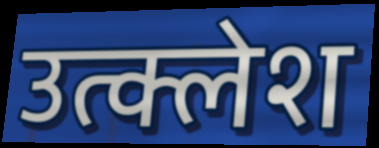
उत्क्लेश